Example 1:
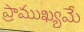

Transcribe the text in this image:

ప్రాముఖ్యమే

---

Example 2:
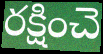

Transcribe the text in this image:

రక్షించె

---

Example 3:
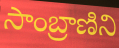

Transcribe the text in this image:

సాంబ్రాణిని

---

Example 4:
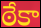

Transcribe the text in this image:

ఠేకా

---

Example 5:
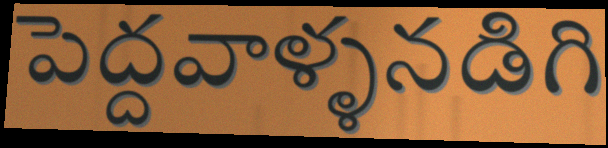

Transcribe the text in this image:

పెద్దవాళ్ళనడిగి